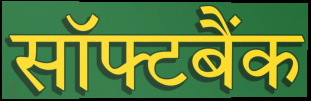
सॉफ्टबैंक